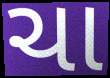
ચા